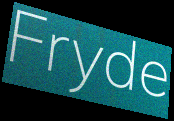
Fryde